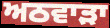
ਅਠਵਾੜਾ